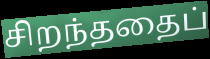
சிறந்ததைப்